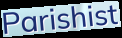
Parishist